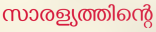
സാരള്യത്തിന്റെ